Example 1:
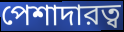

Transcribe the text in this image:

পেশাদারত্ব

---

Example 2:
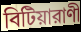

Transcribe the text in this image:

বিটিয়ারাণী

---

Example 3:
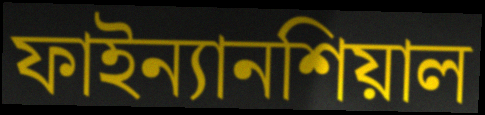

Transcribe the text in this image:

ফাইন্যানশিয়াল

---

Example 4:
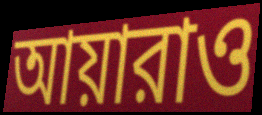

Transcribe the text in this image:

আয়ারাও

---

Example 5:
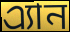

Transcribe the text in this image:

এ্যান